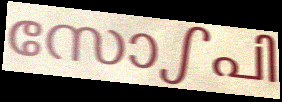
സോഽപി